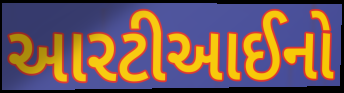
આરટીઆઈનો